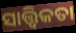
ସାତ୍ତ୍ବିକତା